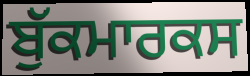
ਬੁੱਕਮਾਰਕਸ